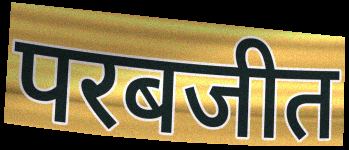
परबजीत